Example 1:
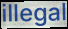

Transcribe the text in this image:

illegal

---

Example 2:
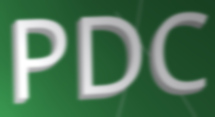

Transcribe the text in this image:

PDC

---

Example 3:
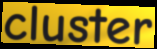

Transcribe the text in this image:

cluster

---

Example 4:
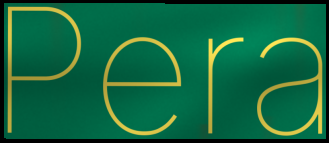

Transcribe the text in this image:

Pera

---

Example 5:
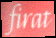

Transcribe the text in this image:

firat